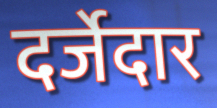
दर्जेदार